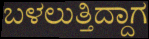
ಬಳಲುತ್ತಿದ್ದಾಗ